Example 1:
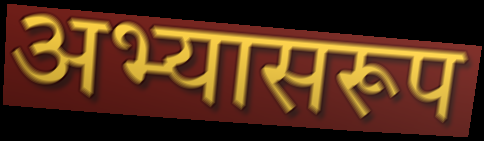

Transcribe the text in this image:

अभ्यासरूप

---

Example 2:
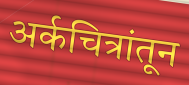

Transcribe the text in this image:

अर्कचित्रांतून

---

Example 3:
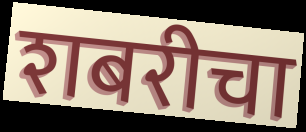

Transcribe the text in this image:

शबरीचा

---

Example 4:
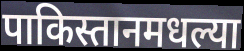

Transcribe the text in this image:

पाकिस्तानमधल्या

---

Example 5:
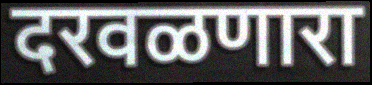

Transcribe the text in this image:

दरवळणारा